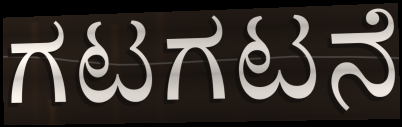
ಗಟಗಟನೆ